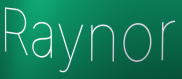
Raynor